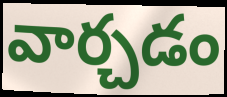
వార్చడం